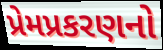
પ્રેમપ્રકરણનો